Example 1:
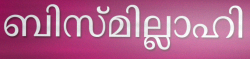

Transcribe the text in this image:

ബിസ്മില്ലാഹി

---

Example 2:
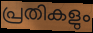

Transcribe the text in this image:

പ്രതികളും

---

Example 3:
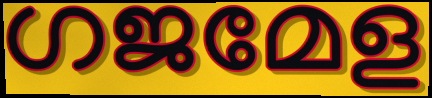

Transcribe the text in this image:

ഗജമേള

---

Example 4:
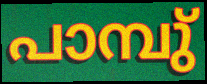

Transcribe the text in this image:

പാമ്പു്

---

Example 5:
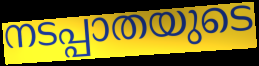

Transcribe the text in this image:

നടപ്പാതയുടെ